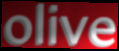
olive